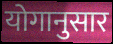
योगानुसार